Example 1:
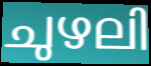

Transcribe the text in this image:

ചുഴലി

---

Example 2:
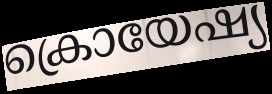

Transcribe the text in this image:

ക്രൊയേഷ്യ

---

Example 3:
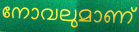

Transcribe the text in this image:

നോവലുമാണ്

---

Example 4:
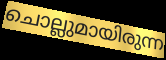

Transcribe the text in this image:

ചൊല്ലുമായിരുന്ന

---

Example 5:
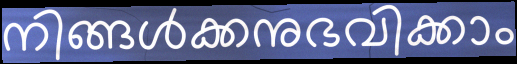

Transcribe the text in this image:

നിങ്ങൾക്കനുഭവിക്കാം